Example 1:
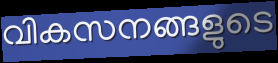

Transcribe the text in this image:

വികസനങ്ങളുടെ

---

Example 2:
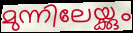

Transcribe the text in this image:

മുന്നിലേയ്ക്കും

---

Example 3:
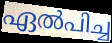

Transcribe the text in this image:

ഏൽപിച്ച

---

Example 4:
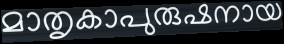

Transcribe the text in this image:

മാതൃകാപുരുഷനായ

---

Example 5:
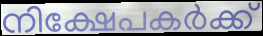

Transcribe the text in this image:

നിക്ഷേപകർക്ക്